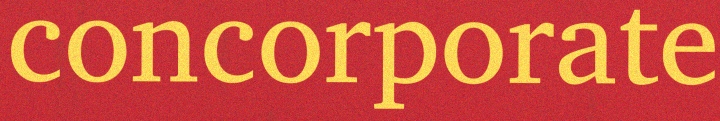
concorporate